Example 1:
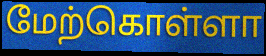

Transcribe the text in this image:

மேற்கொள்ளா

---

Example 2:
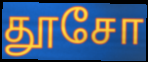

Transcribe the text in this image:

தூசோ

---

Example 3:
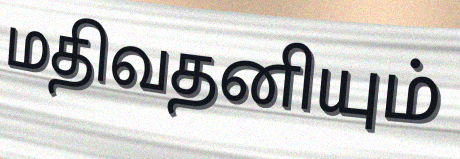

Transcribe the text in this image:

மதிவதனியும்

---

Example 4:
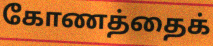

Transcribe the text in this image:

கோணத்தைக்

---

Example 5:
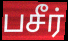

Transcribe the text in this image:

பசீர்